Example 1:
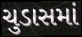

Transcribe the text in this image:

ચુડાસમાં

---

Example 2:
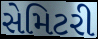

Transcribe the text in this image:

સેમિટરી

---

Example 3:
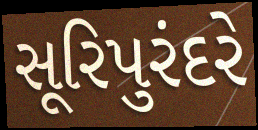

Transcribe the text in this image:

સૂરિપુરંદરે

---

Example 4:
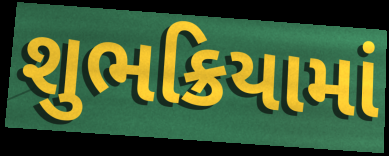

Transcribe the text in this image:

શુભક્રિયામાં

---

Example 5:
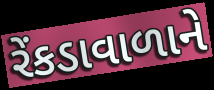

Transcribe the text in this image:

રેંકડાવાળાને